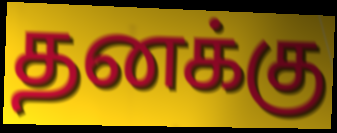
தனக்கு